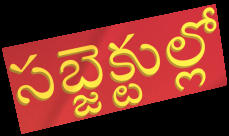
సబ్జెక్టుల్లో